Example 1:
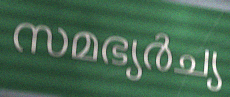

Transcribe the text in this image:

സമഭ്യർച്യ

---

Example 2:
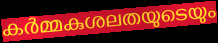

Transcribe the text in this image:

കർമ്മകുശലതയുടെയും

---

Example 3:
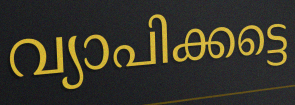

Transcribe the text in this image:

വ്യാപിക്കട്ടെ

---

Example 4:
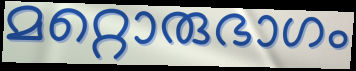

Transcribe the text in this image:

മറ്റൊരുഭാഗം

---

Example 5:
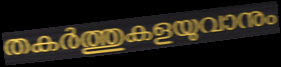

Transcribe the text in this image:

തകർത്തുകളയുവാനും